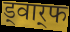
ड्वार्फ